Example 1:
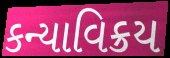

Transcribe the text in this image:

કન્યાવિક્રય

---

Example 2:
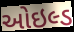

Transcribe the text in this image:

ઓઇલ્ડ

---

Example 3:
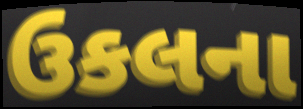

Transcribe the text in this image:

ઉકલના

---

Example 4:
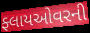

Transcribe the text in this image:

ફ્લાયઓવરની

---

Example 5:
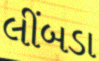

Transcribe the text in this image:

લીંબડા